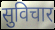
सुविचार